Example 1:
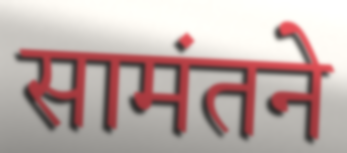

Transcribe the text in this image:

सामंतने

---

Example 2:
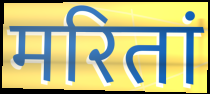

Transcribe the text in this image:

मरितां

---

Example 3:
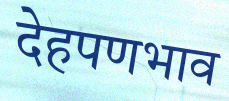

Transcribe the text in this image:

देहपणभाव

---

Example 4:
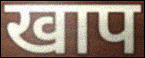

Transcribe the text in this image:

खाप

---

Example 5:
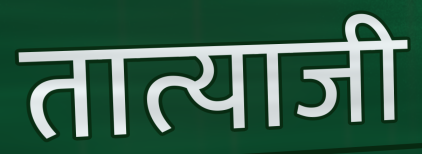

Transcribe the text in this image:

तात्याजी